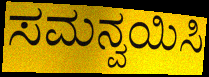
ಸಮನ್ವಯಿಸಿ